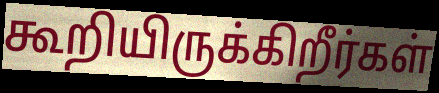
கூறியிருக்கிறீர்கள்